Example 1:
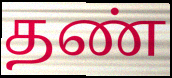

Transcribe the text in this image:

தண்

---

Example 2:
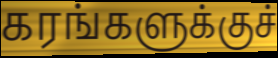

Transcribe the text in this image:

கரங்களுக்குச்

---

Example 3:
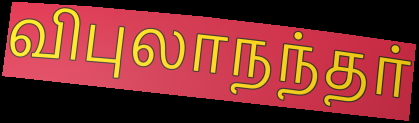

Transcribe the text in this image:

விபுலாநந்தர்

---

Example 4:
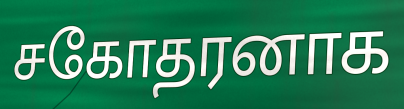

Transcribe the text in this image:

சகோதரனாக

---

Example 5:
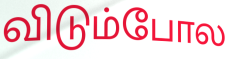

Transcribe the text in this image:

விடும்போல